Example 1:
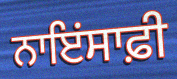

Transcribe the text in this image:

ਨਾਇਂਸਾਫ਼ੀ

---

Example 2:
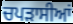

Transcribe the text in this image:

ਚਪੜਾਸੀਆਂ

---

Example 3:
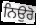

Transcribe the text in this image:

ਨਿਉਰੋ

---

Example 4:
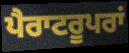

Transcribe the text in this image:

ਪੈਰਾਟਰੂਪਰਾਂ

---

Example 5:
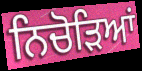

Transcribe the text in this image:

ਨਿਚੋੜਿਆਂ